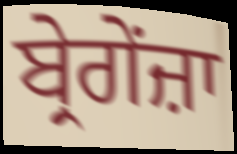
ਬ੍ਰੇਗੇਂਜ਼ਾ